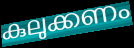
കുലുക്കണം